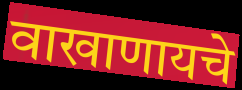
वाखाणायचे